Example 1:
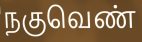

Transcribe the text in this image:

நகுவெண்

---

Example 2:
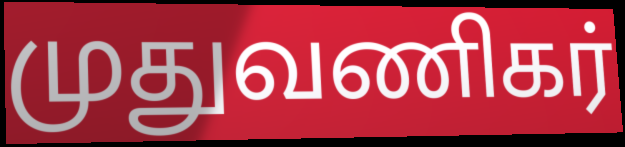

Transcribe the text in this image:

முதுவணிகர்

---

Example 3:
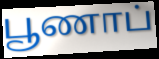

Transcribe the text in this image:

பூணாப்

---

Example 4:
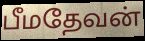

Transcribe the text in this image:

பீமதேவன்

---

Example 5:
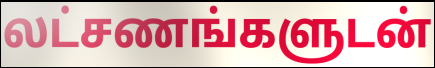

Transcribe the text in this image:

லட்சணங்களுடன்